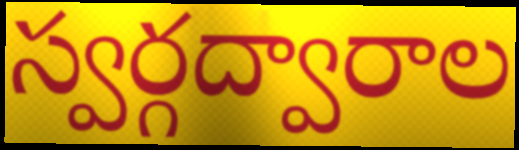
స్వర్గద్వారాల